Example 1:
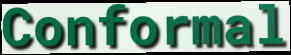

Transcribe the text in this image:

Conformal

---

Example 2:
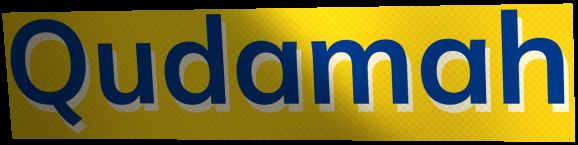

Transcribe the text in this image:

Qudamah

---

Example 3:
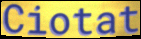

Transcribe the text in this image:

Ciotat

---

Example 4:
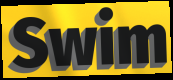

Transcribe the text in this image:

Swim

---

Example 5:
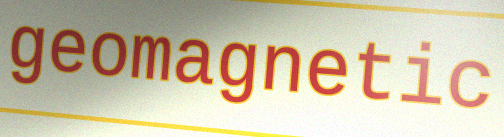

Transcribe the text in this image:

geomagnetic